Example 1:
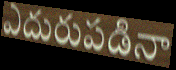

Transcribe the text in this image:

ఎదురుపడినా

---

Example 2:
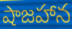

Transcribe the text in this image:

షాజహాన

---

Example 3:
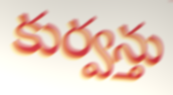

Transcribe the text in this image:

కుర్వన్తు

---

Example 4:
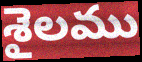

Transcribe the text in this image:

శైలము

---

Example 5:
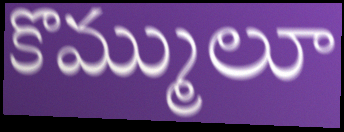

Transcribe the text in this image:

కొమ్ములూ